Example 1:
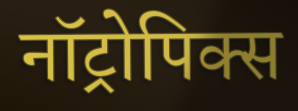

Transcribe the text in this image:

नॉट्रोपिक्स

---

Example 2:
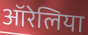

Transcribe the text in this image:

ऑरेलिया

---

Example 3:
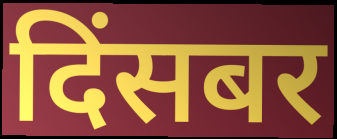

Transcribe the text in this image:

दिंसबर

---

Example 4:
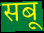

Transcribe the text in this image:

सबू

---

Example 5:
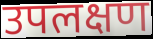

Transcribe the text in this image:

उपलक्षण